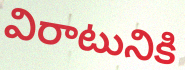
విరాటునికి